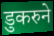
डुकरुने